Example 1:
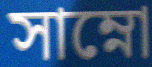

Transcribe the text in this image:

সাম্নো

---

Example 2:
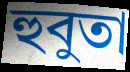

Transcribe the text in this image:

হুবুতা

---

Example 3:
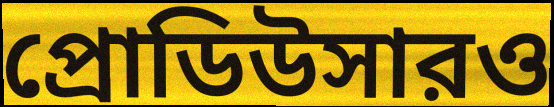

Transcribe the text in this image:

প্রোডিউসারও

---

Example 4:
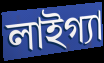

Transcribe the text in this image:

লাইগ্যা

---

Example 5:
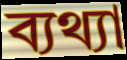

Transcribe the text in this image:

ব্যথ্যা